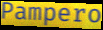
Pampero